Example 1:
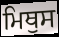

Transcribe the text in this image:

ਮਿਥੁਸ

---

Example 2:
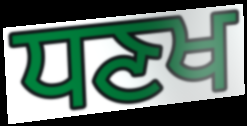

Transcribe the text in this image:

ਧਣਖ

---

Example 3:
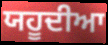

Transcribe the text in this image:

ਯਹੂਦੀਆ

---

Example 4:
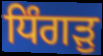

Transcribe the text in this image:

ਧਿੰਗੜੁ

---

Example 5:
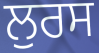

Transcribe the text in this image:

ਲੁਰਸ